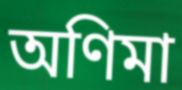
অণিমা